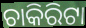
ଚାକିରିଟା